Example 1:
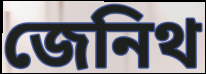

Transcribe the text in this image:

জেনিথ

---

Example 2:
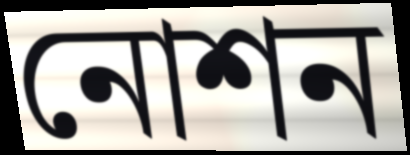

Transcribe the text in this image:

নোশন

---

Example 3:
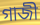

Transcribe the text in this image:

গাজী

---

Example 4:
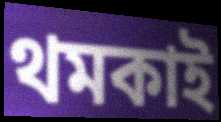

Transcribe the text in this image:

থমকাই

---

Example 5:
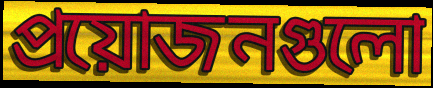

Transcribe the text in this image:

প্রয়োজনগুলো